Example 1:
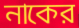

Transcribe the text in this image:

নাকের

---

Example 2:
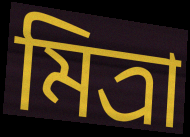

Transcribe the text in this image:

মিত্রা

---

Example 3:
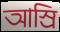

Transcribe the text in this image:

আস্রি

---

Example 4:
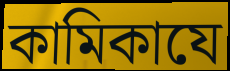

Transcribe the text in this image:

কামিকাযে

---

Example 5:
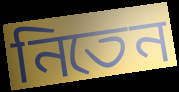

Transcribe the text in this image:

নিতেন